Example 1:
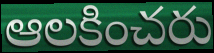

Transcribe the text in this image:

ఆలకించరు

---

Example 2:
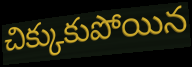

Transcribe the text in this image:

చిక్కుకుపోయిన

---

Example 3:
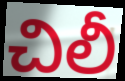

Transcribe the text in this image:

చిలీ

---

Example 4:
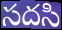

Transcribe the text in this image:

సదసి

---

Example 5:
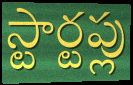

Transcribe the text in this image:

స్టార్టప్లు